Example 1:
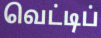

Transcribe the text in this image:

வெட்டிப்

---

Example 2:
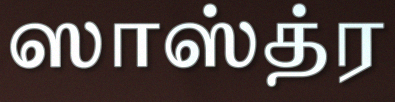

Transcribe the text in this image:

ஸாஸ்த்ர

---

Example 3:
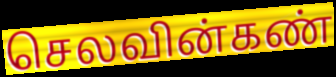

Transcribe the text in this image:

செலவின்கண்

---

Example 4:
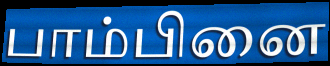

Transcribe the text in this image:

பாம்பினை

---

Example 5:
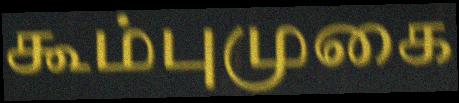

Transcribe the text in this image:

கூம்புமுகை